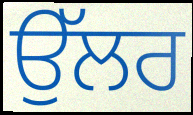
ਉੱਲਰ